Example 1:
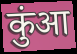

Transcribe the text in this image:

कुंआ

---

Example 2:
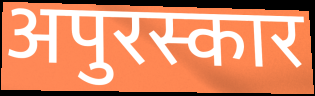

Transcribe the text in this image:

अपुरस्कार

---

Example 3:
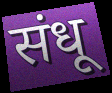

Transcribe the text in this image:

संधू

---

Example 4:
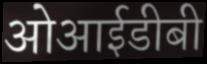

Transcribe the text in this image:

ओआईडीबी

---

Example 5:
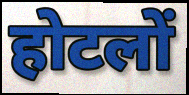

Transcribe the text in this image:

होटलों